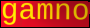
gamno